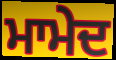
ਮਾਮੇਦ